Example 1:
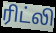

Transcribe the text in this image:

ரிட்லி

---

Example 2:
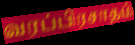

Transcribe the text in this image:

வரப்பிரசாதம்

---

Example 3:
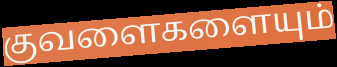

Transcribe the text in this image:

குவளைகளையும்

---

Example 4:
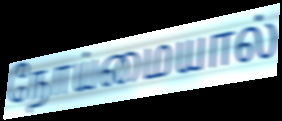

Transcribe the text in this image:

நோய்மையால்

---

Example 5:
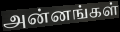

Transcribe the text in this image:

அன்னங்கள்